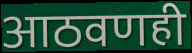
आठवणही